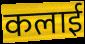
कलाई